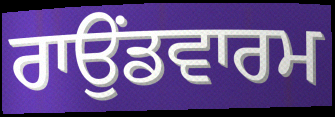
ਰਾਉਂਡਵਾਰਮ